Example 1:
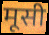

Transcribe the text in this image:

मूसी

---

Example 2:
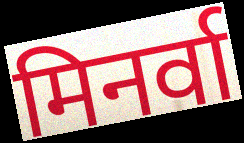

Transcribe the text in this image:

मिनर्वा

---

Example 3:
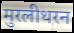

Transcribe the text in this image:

मुरलीथरन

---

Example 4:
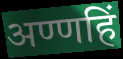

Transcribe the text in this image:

अण्णहिं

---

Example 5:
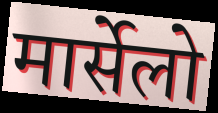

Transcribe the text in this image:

मार्सेलो